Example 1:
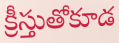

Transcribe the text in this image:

క్రీస్తుతోకూడ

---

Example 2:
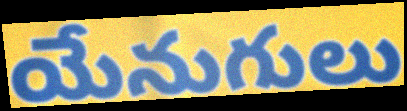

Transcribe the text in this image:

యేనుగులు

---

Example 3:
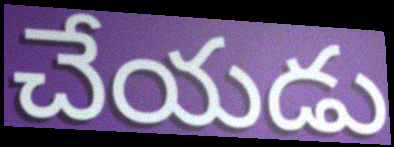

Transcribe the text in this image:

చేయడు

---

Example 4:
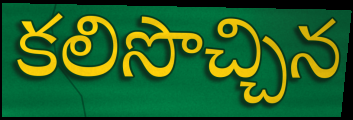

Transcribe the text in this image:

కలిసొచ్చిన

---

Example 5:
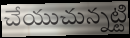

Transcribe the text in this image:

చేయుచున్నట్టి